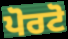
ਪੋਰਟੋ